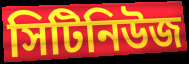
সিটিনিউজ